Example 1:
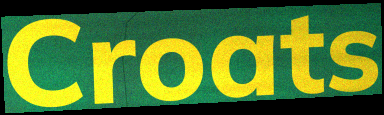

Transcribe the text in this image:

Croats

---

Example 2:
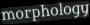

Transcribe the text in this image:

morphology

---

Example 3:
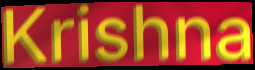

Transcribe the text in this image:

Krishna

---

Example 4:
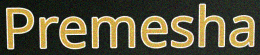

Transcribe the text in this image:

Premesha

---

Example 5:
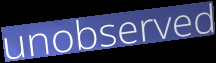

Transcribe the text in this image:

unobserved